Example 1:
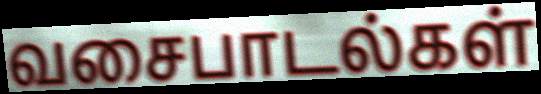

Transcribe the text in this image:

வசைபாடல்கள்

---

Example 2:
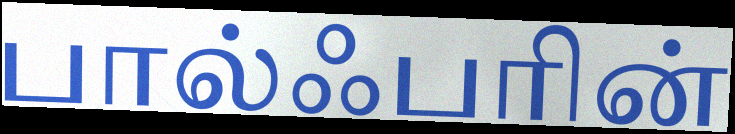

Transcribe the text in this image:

பால்ஃபரின்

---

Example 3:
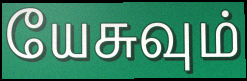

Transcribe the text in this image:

யேசுவும்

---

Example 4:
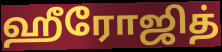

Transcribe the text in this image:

ஹீரோஜித்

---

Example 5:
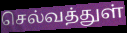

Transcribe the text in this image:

செல்வத்துள்